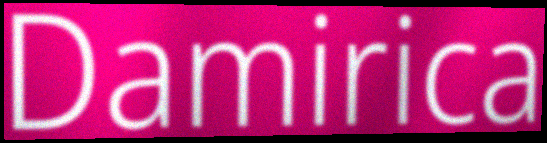
Damirica